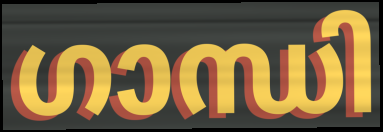
ഗാന്ധി